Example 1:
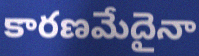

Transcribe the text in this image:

కారణమేదైనా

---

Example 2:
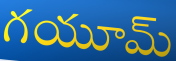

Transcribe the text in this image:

గయూమ్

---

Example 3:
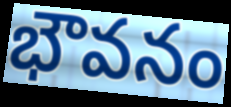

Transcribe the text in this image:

భౌవనం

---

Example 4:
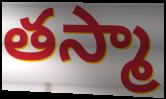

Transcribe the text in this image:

తస్మా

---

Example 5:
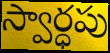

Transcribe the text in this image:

స్వార్ధపు